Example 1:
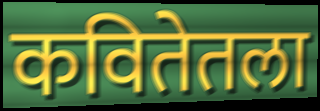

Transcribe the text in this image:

कवितेतला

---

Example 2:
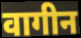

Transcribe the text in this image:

वागीन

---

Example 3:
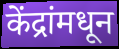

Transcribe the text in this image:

केंद्रांमधून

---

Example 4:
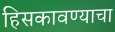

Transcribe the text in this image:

हिसकावण्याचा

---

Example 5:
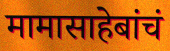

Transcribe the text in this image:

मामासाहेबांचं